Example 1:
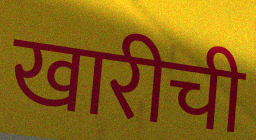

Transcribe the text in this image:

खारीची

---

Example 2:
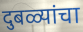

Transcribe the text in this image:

दुबळ्यांचा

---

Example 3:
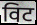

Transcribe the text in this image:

विट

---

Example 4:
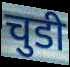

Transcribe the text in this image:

चुडी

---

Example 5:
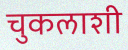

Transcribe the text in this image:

चुकलाशी